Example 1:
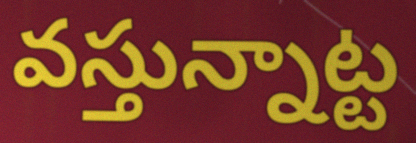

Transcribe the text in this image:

వస్తున్నాట్ట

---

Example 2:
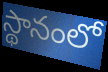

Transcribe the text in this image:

స్థానంలో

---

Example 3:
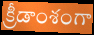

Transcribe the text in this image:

క్రీడాంశంగా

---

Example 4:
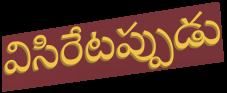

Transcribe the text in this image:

విసిరేటప్పుడు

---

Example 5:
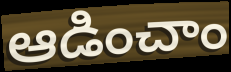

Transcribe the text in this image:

ఆడించాం